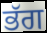
ਭੱਗ